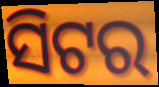
ସିଟର